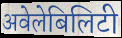
अवेलेबिलिटी